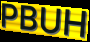
PBUH